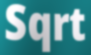
Sqrt